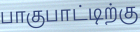
பாகுபாட்டிற்கு